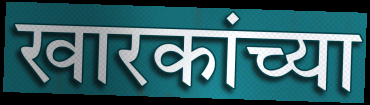
खारकांच्या